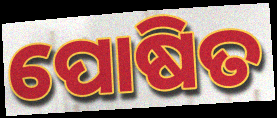
ପୋଷିତ